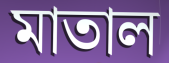
মাতাল